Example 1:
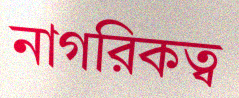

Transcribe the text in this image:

নাগরিকত্ব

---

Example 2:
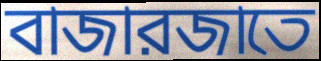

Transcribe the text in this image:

বাজারজাতে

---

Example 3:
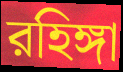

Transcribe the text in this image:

রহিঙ্গা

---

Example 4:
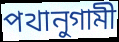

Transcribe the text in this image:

পথানুগামী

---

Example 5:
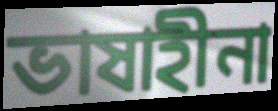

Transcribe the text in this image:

ভাষাহীনা